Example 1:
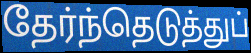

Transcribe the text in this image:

தேர்ந்தெடுத்துப்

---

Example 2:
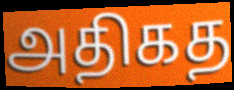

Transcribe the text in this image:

அதிகத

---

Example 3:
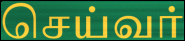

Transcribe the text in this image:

செய்வர்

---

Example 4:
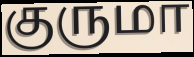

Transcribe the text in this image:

குருமா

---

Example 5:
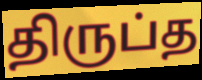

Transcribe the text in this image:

திருப்த